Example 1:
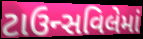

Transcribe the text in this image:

ટાઉન્સવિલેમાં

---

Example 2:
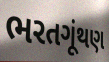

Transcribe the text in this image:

ભરતગૂંથણ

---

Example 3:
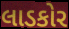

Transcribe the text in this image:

લાડકોર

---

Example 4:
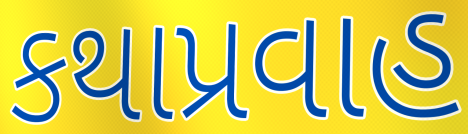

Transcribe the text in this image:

કથાપ્રવાહ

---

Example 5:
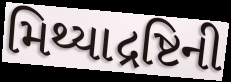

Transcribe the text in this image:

મિથ્યાદ્રષ્ટિની